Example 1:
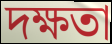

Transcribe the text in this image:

দক্ষতা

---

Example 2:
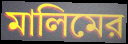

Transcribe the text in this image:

মালিমের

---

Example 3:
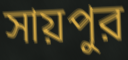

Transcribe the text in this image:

সায়পুর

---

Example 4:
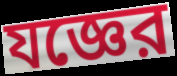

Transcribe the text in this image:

যজ্ঞের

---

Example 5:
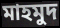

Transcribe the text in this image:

মাহমুদ